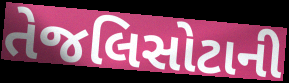
તેજલિસોટાની